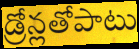
డ్రోన్లతోపాటు